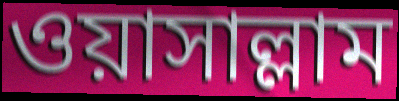
ওয়াসাল্লাম